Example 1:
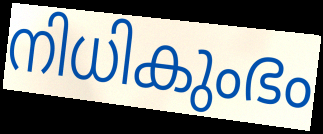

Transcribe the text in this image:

നിധികുംഭം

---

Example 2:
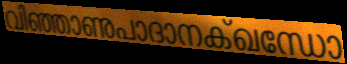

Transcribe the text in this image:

വിഞ്ഞാണുപാദാനക്ഖന്ധോ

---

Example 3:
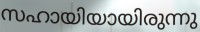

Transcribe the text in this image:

സഹായിയായിരുന്നു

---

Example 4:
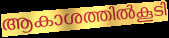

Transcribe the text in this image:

ആകാശത്തിൽകൂടി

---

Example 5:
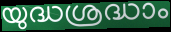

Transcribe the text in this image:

യുദ്ധശ്രദ്ധാം